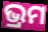
ଭ୍ରମ